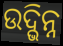
ଉଦ୍ଭିନ୍ନ